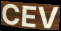
CEV